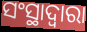
ସଂସ୍ଥାଦ୍ଵାରା